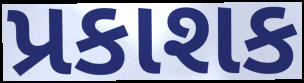
પ્રકાશક